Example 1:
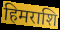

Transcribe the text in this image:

हिमराशि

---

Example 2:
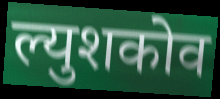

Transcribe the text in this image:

ल्युशकोव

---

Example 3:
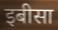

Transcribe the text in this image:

इबीसा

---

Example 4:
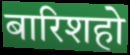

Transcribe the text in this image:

बारिशहो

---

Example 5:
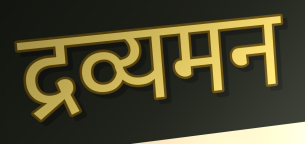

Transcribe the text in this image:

द्रव्यमन